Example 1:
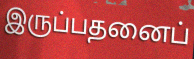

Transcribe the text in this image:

இருப்பதனைப்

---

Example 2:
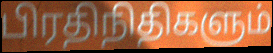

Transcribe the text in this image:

பிரதிநிதிகளும்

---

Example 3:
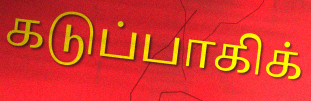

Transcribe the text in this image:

கடுப்பாகிக்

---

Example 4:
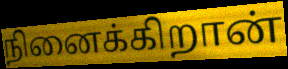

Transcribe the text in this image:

நினைக்கிறான்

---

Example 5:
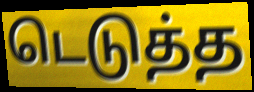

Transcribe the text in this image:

டெடுத்த